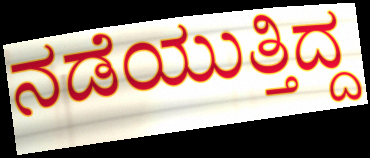
ನಡೆಯುತ್ತಿದ್ದ